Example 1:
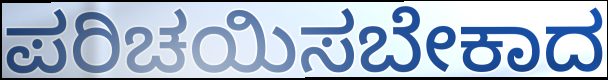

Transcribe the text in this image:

ಪರಿಚಯಿಸಬೇಕಾದ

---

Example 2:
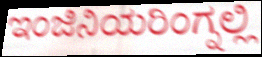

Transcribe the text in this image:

ಇಂಜಿನಿಯರಿಂಗ್ನಲ್ಲಿ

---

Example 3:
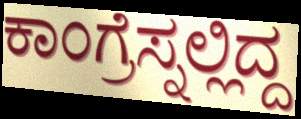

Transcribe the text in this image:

ಕಾಂಗ್ರೆಸ್ನಲ್ಲಿದ್ದ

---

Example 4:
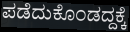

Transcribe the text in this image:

ಪಡೆದುಕೊಂಡದ್ದಕ್ಕೆ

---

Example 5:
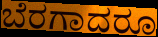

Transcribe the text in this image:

ಬೆರಗಾದರೂ